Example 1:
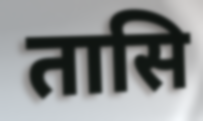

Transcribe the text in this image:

तासि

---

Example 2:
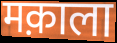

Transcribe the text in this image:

मक़ाला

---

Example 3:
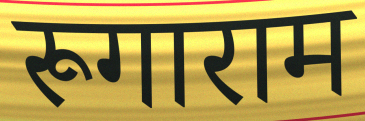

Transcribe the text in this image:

रूगाराम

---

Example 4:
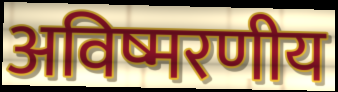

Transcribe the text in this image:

अविष्मरणीय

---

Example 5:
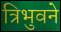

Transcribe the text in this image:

त्रिभुवने